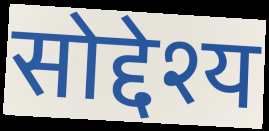
सोद्देश्य